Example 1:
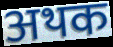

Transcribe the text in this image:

अथक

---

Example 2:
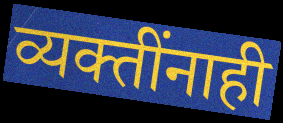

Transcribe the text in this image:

व्यक्तींनाही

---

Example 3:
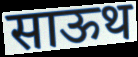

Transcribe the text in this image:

साऊथ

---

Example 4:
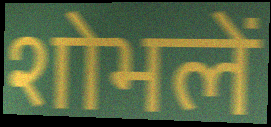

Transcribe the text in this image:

शोभलें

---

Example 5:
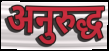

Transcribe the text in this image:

अनुरुद्ध